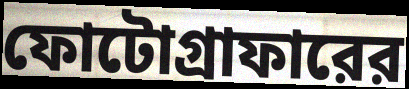
ফোটোগ্রাফারের